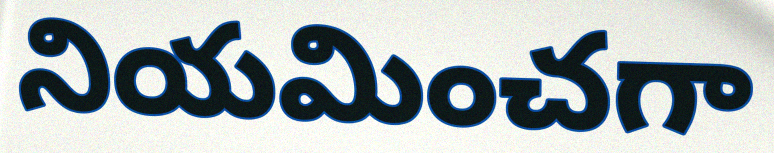
నియమించగా